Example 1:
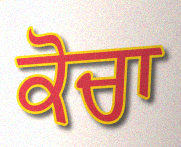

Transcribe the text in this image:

ਕੋਚਾ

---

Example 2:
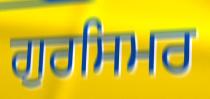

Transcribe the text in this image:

ਗੁਰਸਿਮਰ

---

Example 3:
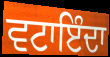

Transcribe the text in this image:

ਵਟਾਇੰਦਾ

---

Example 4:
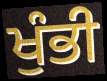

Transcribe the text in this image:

ਖੁੰਭੀ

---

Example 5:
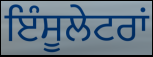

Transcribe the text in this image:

ਇੰਸੂਲੇਟਰਾਂ